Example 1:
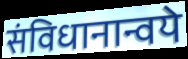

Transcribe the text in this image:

संविधानान्वये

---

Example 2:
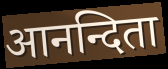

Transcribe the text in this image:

आनन्दिता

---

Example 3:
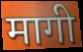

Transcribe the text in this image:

मागी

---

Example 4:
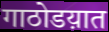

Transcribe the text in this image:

गाठोडय़ात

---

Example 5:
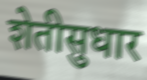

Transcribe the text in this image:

शेतीसुधार